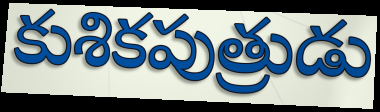
కుశికపుత్రుడు